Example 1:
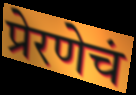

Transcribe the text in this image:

प्रेरणेचं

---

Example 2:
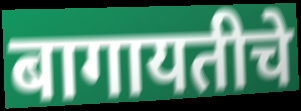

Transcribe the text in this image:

बागायतीचे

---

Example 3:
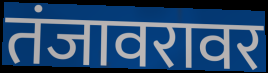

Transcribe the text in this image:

तंजावरावर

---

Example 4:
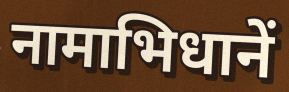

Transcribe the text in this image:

नामाभिधानें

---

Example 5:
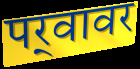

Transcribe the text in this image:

पर्वावर